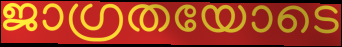
ജാഗ്രതയോടെ